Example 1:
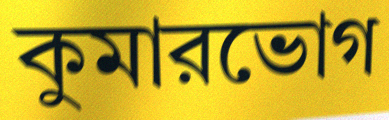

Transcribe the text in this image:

কুমারভোগ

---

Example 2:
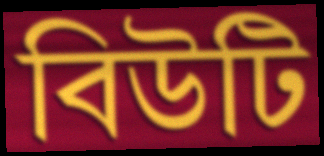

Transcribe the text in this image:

বিউটি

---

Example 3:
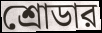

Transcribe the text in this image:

শ্রোডার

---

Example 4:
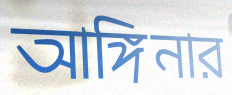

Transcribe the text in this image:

আঙ্গিনার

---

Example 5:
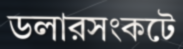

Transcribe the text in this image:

ডলারসংকটে